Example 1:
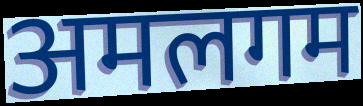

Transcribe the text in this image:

अमलगम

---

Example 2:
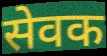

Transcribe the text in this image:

सेवक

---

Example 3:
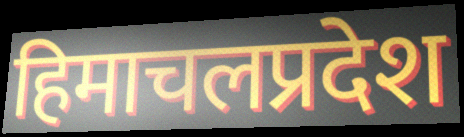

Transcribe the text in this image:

हिमाचलप्रदेश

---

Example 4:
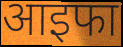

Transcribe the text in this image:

आइफा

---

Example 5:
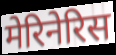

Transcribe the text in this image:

मेरिनेरिस